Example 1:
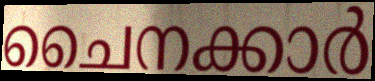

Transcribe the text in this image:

ചൈനക്കാർ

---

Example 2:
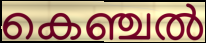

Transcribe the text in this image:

കെഞ്ചൽ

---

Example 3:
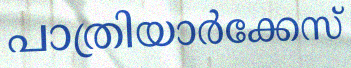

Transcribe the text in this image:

പാത്രിയാർക്കേസ്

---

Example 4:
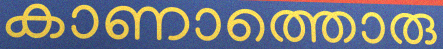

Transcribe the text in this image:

കാണാത്തൊരു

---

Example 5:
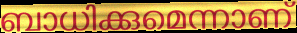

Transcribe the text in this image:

ബാധിക്കുമെന്നാണ്